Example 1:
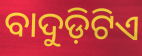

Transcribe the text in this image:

ବାଦୁଡ଼ିଟିଏ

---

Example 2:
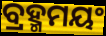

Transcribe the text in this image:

ବ୍ରହ୍ମମୟଂ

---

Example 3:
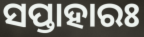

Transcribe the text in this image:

ସପ୍ତାହାରଃ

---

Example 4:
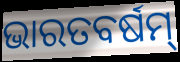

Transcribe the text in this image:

ଭାରତବର୍ଷମ୍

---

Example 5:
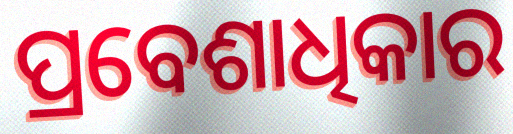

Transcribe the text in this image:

ପ୍ରବେଶାଧିକାର